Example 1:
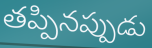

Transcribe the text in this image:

తప్పినప్పుడు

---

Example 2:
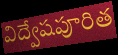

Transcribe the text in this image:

విద్వేషపూరిత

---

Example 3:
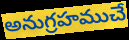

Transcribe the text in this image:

అనుగ్రహముచే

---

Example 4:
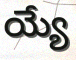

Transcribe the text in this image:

య్యే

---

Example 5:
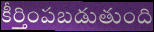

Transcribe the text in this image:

కీర్తింపబడుతుంది